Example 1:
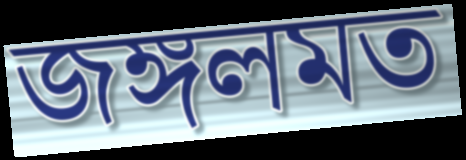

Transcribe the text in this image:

জঙ্গলমত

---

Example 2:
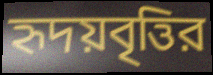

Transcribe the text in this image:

হৃদয়বৃত্তির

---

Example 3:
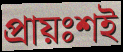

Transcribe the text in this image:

প্রায়ঃশই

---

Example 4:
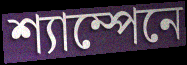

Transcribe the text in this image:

শ্যাম্পেনে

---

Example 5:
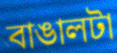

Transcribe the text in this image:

বাঙালটা